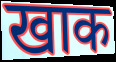
खाक